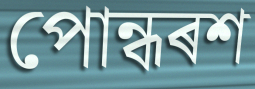
পোন্ধৰশ